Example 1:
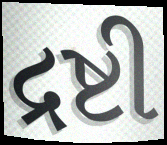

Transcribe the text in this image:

દ્રષ્ટી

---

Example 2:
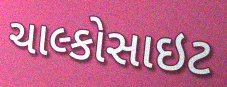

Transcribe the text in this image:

ચાલ્કોસાઇટ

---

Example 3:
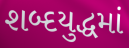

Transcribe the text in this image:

શબ્દયુદ્ધમાં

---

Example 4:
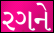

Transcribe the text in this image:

રગને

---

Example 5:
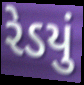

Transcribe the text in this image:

રેડયું